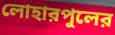
লোহারপুলের